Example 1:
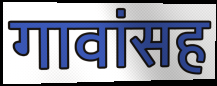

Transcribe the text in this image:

गावांसह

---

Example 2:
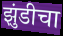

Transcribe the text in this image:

झुंडीचा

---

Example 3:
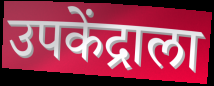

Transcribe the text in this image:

उपकेंद्राला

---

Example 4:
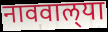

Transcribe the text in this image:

नाववाल्या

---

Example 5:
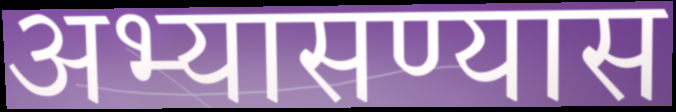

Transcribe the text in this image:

अभ्यासण्यास